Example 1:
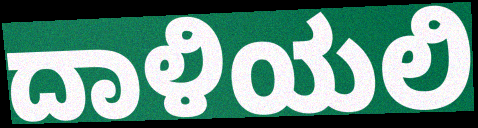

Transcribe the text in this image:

ದಾಳಿಯಲಿ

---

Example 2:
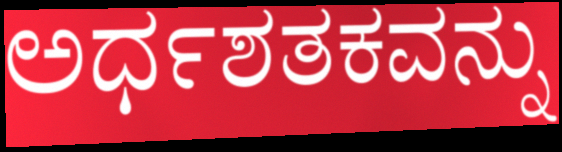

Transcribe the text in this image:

ಅರ್ಧಶತಕವನ್ನು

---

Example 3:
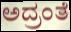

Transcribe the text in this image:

ಅದ್ರಂತೆ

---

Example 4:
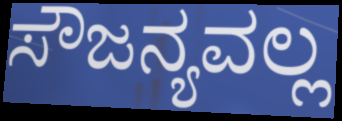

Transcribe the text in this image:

ಸೌಜನ್ಯವಲ್ಲ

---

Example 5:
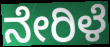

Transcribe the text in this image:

ನೇರಿಳೆ